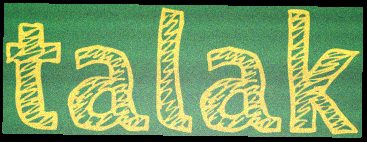
talak